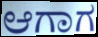
ಆಗಾಗ